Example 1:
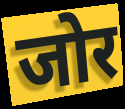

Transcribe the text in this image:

जोर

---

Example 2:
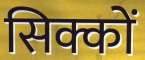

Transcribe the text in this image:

सिक्‍कों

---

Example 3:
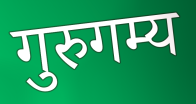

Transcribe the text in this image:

गुरुगम्य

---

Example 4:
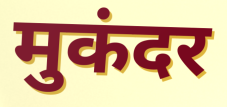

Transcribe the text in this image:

मुकंदर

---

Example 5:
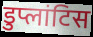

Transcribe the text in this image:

डुप्लांटिस